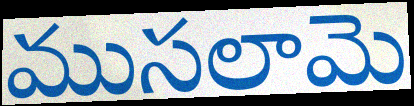
ముసలామె